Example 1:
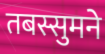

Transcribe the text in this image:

तबस्सुमने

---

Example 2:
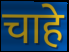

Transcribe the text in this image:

चाहे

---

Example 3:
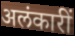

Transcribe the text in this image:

अलंकारीं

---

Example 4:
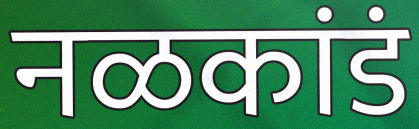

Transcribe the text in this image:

नळकांडं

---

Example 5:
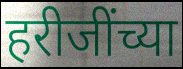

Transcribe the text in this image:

हरीजींच्या